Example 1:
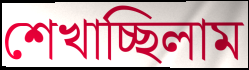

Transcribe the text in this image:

শেখাচ্ছিলাম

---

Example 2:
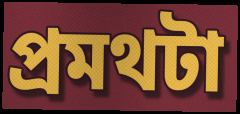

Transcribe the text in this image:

প্রমথটা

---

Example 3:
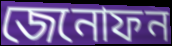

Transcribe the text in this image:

জেনোফন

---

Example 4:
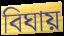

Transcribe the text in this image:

বিঘায়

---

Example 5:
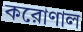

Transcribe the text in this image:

করোণাল